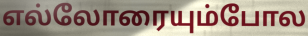
எல்லோரையும்போல